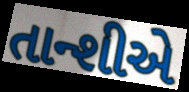
તાન્શીએ